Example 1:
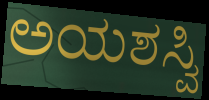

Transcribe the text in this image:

ಅಯಶಸ್ವಿ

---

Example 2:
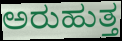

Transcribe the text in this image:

ಅರುಹುತ್ತ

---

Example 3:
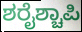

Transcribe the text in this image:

ಶರೈಶ್ಚಾಪಿ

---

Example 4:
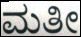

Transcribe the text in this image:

ಮತೀ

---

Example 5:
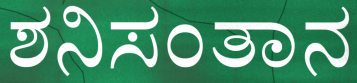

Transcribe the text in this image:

ಶನಿಸಂತಾನ